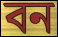
বন